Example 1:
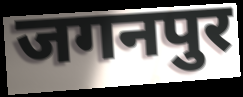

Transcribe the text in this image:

जगनपुर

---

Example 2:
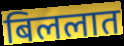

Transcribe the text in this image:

बिललात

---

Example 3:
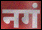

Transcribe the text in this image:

नगं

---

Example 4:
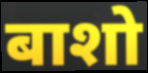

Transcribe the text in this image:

बाशो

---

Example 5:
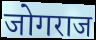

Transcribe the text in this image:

जोगराज